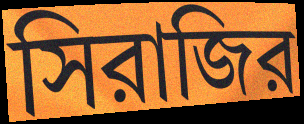
সিরাজির